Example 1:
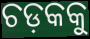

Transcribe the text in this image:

ଚଡ଼କକୁ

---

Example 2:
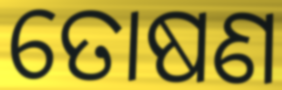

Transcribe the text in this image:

ତୋଷଣ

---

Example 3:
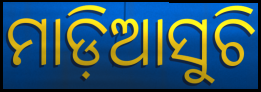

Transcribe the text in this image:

ମାଡ଼ିଆସୁଚି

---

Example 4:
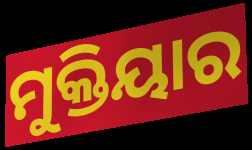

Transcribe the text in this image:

ମୁକ୍ତିୟାର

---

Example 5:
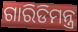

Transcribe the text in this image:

ଗାରିଡିମନ୍ତ୍ର